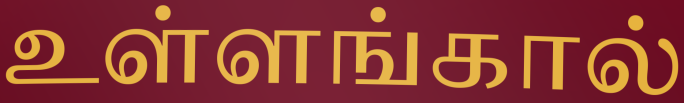
உள்ளங்கால்